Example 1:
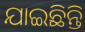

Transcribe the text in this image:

ଯାଇଛିନ୍ତି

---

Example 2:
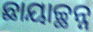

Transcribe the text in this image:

ଛାୟାଚ୍ଛନ୍ନ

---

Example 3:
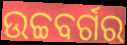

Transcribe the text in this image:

ଉଚ୍ଚବର୍ଗର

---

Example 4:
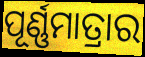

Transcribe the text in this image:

ପୂର୍ଣ୍ଣମାତ୍ରାର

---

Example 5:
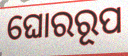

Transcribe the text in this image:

ଘୋରରୂପ